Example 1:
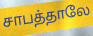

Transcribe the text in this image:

சாபத்தாலே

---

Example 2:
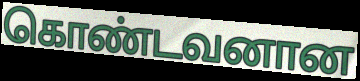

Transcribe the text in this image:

கொண்டவனான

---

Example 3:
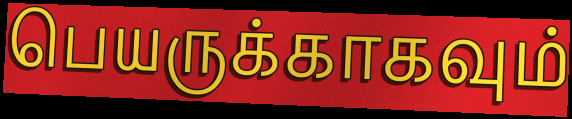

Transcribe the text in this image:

பெயருக்காகவும்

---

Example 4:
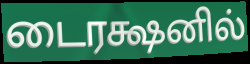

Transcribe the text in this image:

டைரக்ஷனில்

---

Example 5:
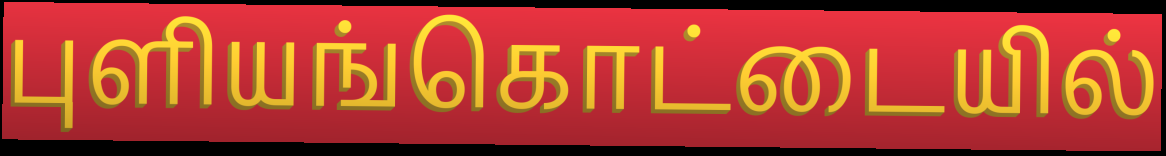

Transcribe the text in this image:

புளியங்கொட்டையில்